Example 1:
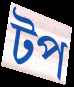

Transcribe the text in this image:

টপ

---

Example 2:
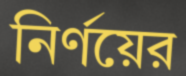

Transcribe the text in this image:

নির্ণয়ের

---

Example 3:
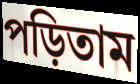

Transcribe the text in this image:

পড়িতাম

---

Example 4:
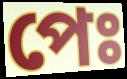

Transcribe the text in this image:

পেঃ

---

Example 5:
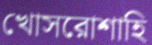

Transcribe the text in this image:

খোসরোশাহি